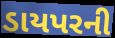
ડાયપરની